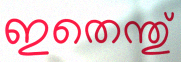
ഇതെന്തു്